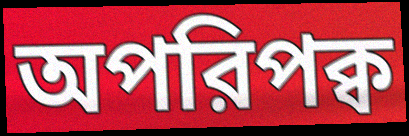
অপরিপক্ব